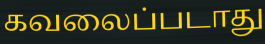
கவலைப்படாது